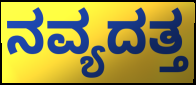
ನವ್ಯದತ್ತ